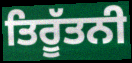
ਤਿਰੂੱਤਨੀ